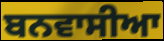
ਬਨਵਾਸੀਆ